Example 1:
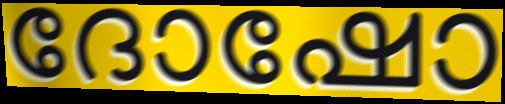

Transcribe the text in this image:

ദോഷോ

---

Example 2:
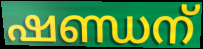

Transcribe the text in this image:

ഷണ്ഡന്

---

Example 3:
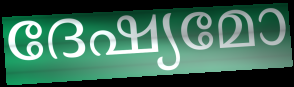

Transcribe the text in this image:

ദേഷ്യമോ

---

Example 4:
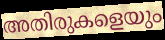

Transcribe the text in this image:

അതിരുകളെയും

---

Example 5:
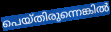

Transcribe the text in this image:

പെയ്തിരുന്നെങ്കിൽ